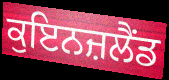
ਕੁਇਨਜ਼ਲੈਂਡ